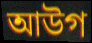
আউগ